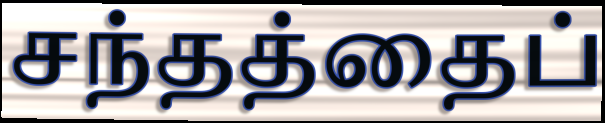
சந்தத்தைப்